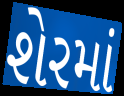
શેરમાં